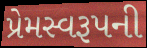
પ્રેમસ્વરૂપની